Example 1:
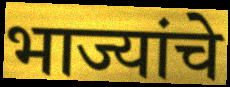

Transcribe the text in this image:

भाज्यांचे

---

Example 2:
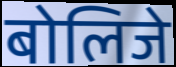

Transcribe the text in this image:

बोलिजे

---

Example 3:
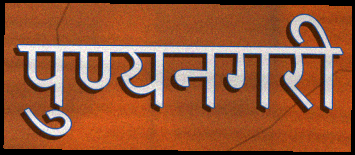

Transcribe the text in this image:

पुण्यनगरी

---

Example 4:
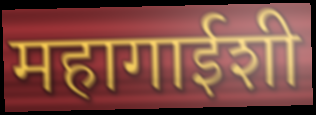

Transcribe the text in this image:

महागाईशी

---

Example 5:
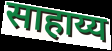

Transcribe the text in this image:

साहाय्य